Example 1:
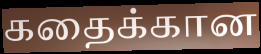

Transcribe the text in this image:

கதைக்கான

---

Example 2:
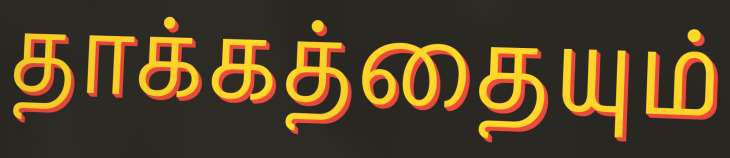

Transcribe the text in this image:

தாக்கத்தையும்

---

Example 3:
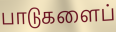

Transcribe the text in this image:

பாடுகளைப்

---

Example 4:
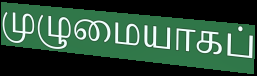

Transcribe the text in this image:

முழுமையாகப்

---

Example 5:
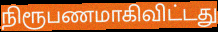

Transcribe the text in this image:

நிரூபணமாகிவிட்டது